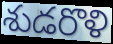
శుడరొళి